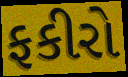
ફકીરો